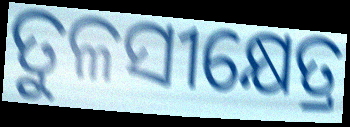
ତୁଳସୀକ୍ଷେତ୍ର